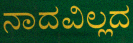
ನಾದವಿಲ್ಲದ